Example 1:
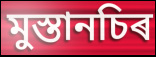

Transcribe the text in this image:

মুস্তানচিৰ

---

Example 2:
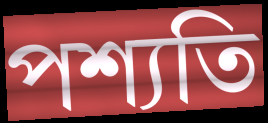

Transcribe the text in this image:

পশ্যতি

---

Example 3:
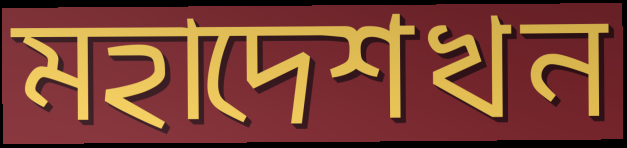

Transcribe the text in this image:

মহাদেশখন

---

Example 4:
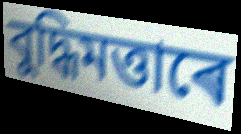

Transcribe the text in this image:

বুদ্ধিমত্তাৰে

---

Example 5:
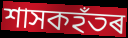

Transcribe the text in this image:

শাসকহঁতৰ